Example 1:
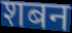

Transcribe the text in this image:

शबन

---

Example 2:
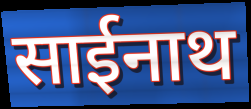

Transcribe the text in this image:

साईनाथ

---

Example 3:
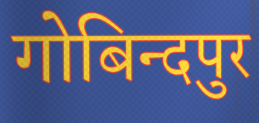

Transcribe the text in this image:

गोबिन्दपुर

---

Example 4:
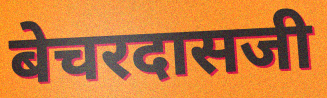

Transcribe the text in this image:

बेचरदासजी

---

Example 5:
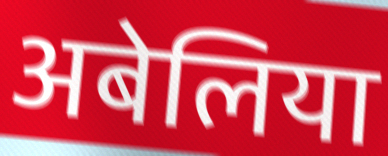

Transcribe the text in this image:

अबेलिया